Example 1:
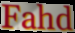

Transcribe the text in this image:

Fahd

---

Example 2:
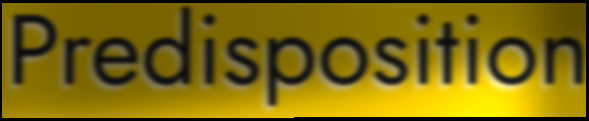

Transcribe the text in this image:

Predisposition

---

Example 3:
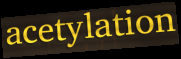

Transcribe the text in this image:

acetylation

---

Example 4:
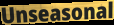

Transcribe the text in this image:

Unseasonal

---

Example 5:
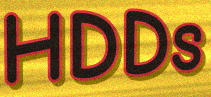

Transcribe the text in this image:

HDDs